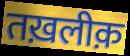
तख़लीक़